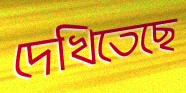
দেখিতেছে